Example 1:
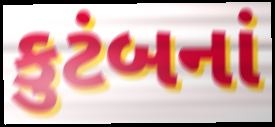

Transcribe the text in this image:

કુટંબનાં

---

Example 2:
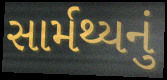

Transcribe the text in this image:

સાર્મથ્યનું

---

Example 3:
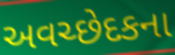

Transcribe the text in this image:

અવચ્છેદકના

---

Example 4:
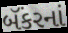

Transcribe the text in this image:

બૅંકરનાં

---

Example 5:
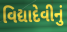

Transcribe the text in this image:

વિદ્યાદેવીનું